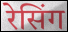
रेसिंग